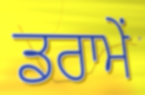
ਡਰਾਮੇਂ